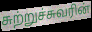
சுற்றுச்சுவரின்